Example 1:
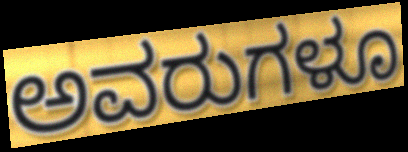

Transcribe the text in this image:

ಅವರುಗಳೂ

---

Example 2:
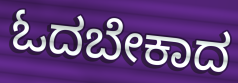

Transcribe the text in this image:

ಓದಬೇಕಾದ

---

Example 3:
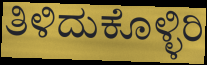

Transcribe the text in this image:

ತಿಳಿದುಕೊಳ್ಳಿರಿ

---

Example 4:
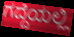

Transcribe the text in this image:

ಗದ್ದೆಯಲ್ಲಿ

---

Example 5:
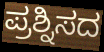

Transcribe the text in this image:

ಪ್ರಶ್ನಿಸದ